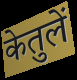
केतुलें